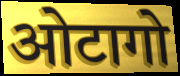
ओटागो